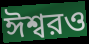
ঈশ্বরও